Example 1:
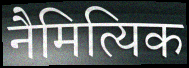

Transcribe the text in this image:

नैमित्यिक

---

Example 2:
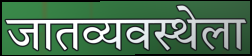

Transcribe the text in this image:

जातव्यवस्थेला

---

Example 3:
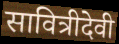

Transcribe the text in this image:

सावित्रीदेवी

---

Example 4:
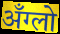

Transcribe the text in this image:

अँग्लो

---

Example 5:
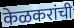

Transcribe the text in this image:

केळकरांची